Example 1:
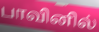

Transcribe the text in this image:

பாவினில்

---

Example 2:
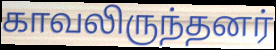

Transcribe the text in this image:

காவலிருந்தனர்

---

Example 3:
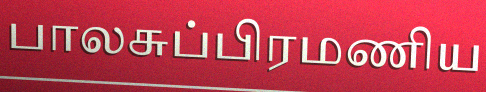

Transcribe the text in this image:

பாலசுப்பிரமணிய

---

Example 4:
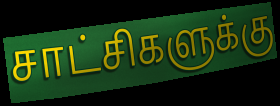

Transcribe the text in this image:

சாட்சிகளுக்கு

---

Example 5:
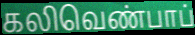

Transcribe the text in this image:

கலிவெண்பாப்